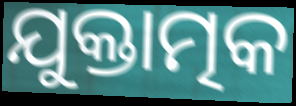
ଯୁକ୍ତାତ୍ମକ